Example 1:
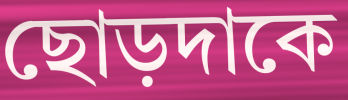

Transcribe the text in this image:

ছোড়দাকে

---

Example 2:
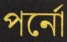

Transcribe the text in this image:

পর্নো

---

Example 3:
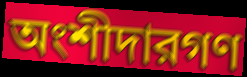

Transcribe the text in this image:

অংশীদারগণ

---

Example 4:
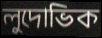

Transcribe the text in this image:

লুদোভিক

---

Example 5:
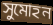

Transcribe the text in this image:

সুমোহন